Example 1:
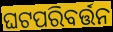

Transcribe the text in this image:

ଘଟପରିବର୍ତ୍ତନ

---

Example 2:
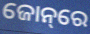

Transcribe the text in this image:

ଜୋନ୍‌ରେ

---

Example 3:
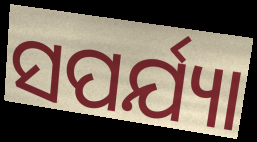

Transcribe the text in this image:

ସପର୍ଯ୍ୟା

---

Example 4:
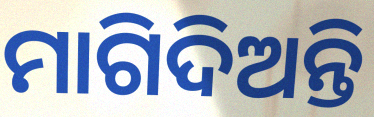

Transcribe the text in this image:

ମାଗିଦିଅନ୍ତି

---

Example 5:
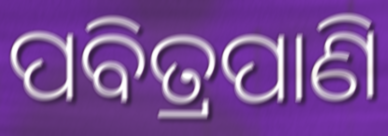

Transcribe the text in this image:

ପବିତ୍ରପାଣି